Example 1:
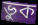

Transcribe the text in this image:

ভুক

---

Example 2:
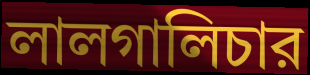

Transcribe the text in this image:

লালগালিচার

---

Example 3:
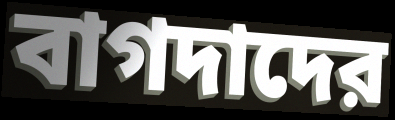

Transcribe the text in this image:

বাগদাদের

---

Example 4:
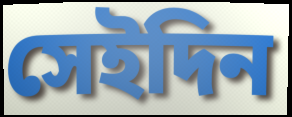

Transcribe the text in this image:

সেইদিন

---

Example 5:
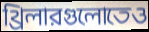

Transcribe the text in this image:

থ্রিলারগুলোতেও